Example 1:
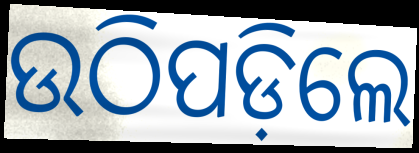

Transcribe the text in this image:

ଉଠିପଡ଼ିଲେ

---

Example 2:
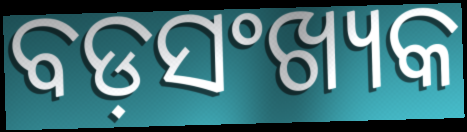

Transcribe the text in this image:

ବଡ଼ସଂଖ୍ୟକ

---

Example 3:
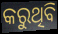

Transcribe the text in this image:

କରୁଥିବି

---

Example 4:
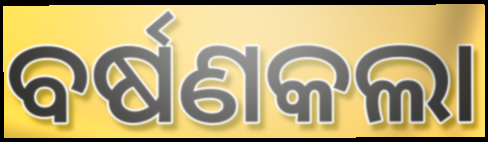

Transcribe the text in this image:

ବର୍ଷଣକଲା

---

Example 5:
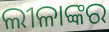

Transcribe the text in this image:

ଲୀଳାଙ୍କର